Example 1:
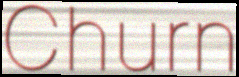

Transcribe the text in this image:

Churn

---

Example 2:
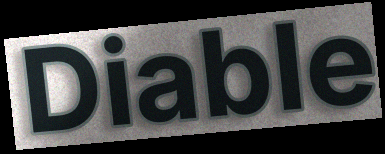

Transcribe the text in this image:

Diable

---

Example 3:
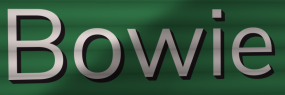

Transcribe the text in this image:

Bowie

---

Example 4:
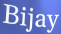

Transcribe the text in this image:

Bijay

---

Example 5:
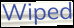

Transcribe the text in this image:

Wiped